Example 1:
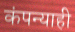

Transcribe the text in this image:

कंपन्याही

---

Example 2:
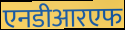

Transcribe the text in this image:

एनडीआरएफ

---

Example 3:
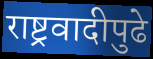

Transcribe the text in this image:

राष्ट्रवादीपुढे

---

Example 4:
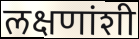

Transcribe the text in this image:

लक्षणांशी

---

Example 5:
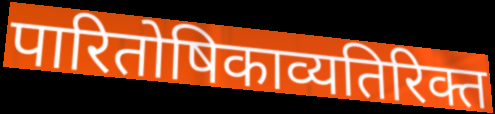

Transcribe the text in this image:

पारितोषिकाव्यतिरिक्त